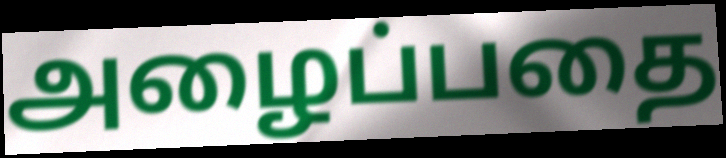
அழைப்பதை